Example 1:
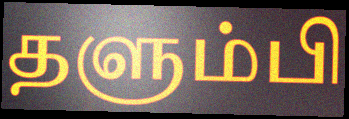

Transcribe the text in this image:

தளும்பி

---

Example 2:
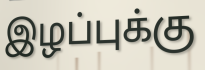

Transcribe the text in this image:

இழப்புக்கு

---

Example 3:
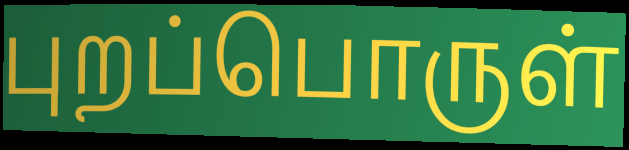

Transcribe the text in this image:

புறப்பொருள்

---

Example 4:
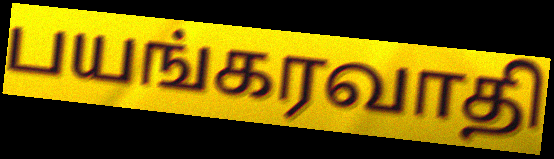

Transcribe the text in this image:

பயங்கரவாதி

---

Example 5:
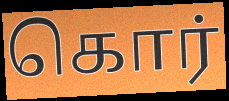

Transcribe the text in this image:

கொர்